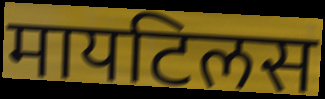
मायटिलस